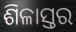
ଶିଳାସ୍ତର